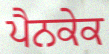
ਪੈਨਕੇਕ